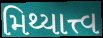
મિથ્યાત્ત્વ